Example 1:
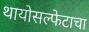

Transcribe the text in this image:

थायोसल्फेटाचा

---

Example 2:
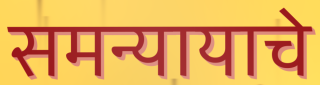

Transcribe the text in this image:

समन्यायाचे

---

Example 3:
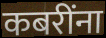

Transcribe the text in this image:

कबरींना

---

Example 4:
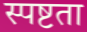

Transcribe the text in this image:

स्पष्टता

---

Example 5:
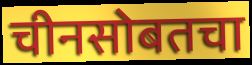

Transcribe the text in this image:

चीनसोबतचा